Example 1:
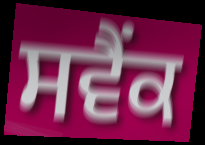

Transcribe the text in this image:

ਸਵੈਂਕ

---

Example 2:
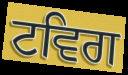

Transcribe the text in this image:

ਟਵਿਗ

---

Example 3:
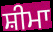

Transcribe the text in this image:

ਸ਼ੀਮਾ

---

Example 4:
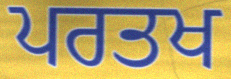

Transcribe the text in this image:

ਪਰਤਖ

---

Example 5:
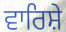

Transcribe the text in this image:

ਵਾਰਿਸ਼ੇ